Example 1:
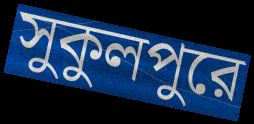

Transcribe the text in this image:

সুকুলপুরে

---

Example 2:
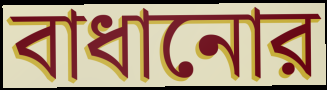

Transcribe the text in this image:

বাধানোর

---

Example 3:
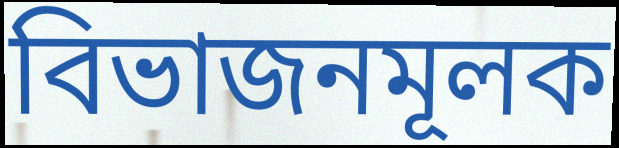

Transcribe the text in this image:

বিভাজনমূলক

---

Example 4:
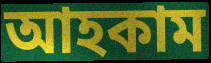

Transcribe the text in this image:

আহকাম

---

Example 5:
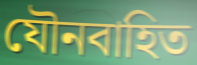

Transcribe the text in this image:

যৌনবাহিত